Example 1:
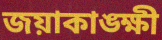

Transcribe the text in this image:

জয়াকাঙ্ক্ষী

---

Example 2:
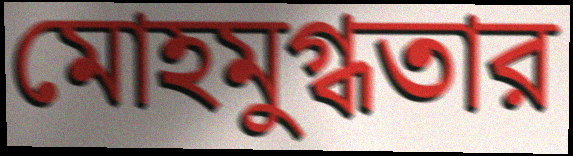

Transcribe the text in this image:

মোহমুগ্ধতার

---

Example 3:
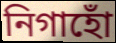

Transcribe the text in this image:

নিগাহোঁ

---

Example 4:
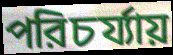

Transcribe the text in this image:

পরিচর্য্যায়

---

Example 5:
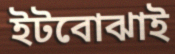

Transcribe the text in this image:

ইটবোঝাই